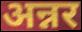
अन्नर